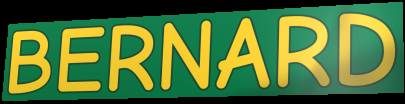
BERNARD